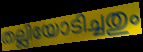
തല്ലിയോടിച്ചതും